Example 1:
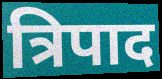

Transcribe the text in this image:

त्रिपाद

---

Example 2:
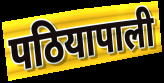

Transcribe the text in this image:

पठियापाली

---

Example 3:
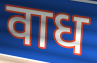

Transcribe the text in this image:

वाध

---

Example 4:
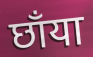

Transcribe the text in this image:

छाँया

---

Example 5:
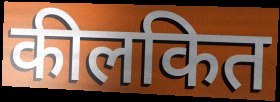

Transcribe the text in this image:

कीलकित